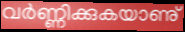
വർണ്ണിക്കുകയാണു്